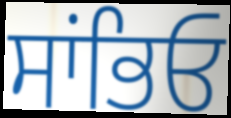
ਸਾਂਭਿਓ